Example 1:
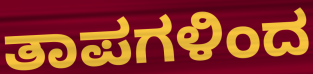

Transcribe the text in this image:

ತಾಪಗಳಿಂದ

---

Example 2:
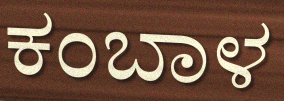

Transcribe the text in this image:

ಕಂಬಾಳ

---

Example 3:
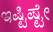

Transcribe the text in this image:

ಇಷ್ಟಿಷ್ಟೇ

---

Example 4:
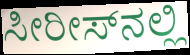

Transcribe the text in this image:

ಸೀರೀಸ್‌ನಲ್ಲಿ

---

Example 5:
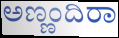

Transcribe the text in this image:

ಅಣ್ಣಂದಿರಾ